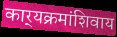
कार्यक्रमांशिवाय